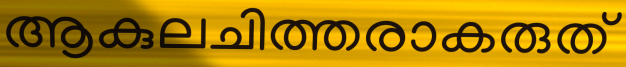
ആകുലചിത്തരാകരുത്